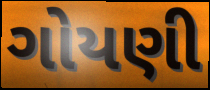
ગોયણી